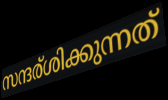
സന്ദര്ശിക്കുന്നത്